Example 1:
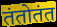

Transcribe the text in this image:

तंतोतंत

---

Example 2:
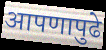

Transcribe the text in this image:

आपणापुढे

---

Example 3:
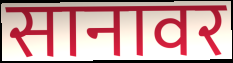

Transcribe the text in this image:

सानावर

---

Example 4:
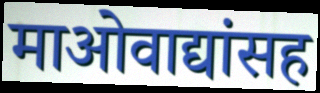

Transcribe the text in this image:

माओवाद्यांसह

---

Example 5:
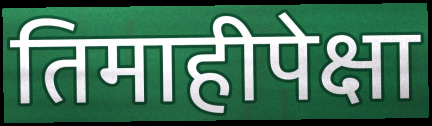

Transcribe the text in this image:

तिमाहीपेक्षा